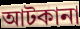
আটকানা